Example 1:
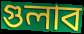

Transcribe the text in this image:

গুলাব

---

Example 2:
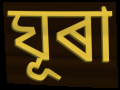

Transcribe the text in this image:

ঘূৰা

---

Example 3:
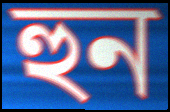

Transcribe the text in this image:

হুন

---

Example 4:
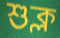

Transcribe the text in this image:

শুক্ল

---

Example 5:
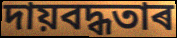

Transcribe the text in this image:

দায়বদ্ধতাৰ